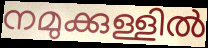
നമുക്കുള്ളിൽ